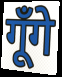
गूँगे